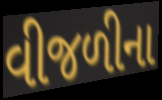
વીજળીના